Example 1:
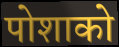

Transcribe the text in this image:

पोशाको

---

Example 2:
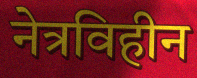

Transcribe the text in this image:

नेत्रविहीन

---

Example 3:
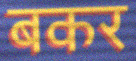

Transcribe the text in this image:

बकर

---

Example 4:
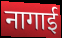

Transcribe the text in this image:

नागाई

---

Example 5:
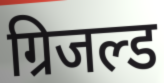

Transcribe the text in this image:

ग्रिजल्ड